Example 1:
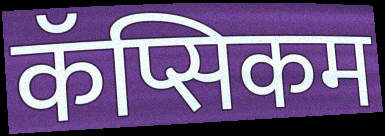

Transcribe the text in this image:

कॅप्सिकम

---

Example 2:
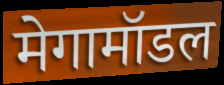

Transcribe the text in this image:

मेगामॉडल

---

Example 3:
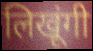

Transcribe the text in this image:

लिखूंगी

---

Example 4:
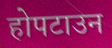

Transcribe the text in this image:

होपटाउन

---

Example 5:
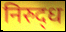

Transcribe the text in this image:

निरुद्ध